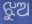
ଝୁଅ